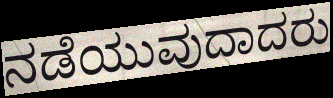
ನಡೆಯುವುದಾದರು